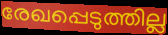
രേഖപ്പെടുത്തില്ല